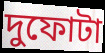
দুফোটা